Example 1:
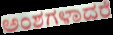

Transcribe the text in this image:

ಅಂಶಗಳಾದರೆ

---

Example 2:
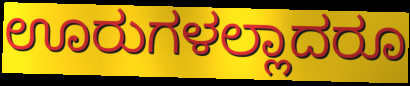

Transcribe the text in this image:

ಊರುಗಳಲ್ಲಾದರೂ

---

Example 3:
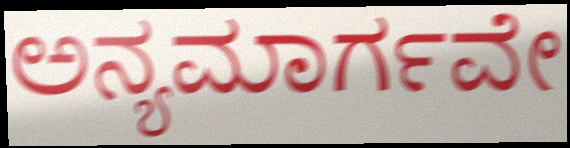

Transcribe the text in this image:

ಅನ್ಯಮಾರ್ಗವೇ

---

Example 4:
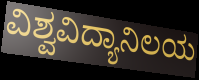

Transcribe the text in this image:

ವಿಶ್ವವಿದ್ಯಾನಿಲಯ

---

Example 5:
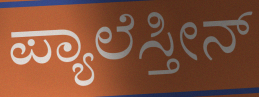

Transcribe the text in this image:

ಪ್ಯಾಲೆಸ್ತೀನ್